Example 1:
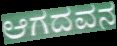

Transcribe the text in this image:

ಆಗದವನ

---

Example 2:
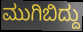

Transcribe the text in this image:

ಮುಗಿಬಿದ್ದು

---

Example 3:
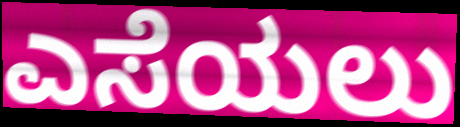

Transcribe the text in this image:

ಎಸೆಯಲು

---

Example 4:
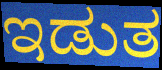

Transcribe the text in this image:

ಇಡುತ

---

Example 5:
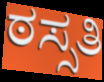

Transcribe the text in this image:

ಠಸ್ಸತಿ